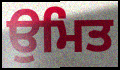
ਉਮਿਤ